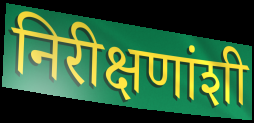
निरीक्षणांशी